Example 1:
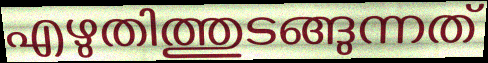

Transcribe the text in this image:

എഴുതിത്തുടങ്ങുന്നത്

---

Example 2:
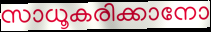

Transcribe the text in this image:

സാധൂകരിക്കാനോ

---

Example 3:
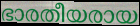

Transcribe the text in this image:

ഭാരതീയരായ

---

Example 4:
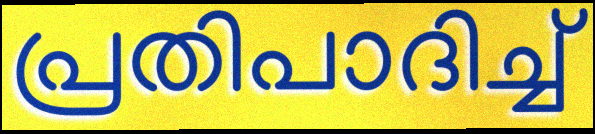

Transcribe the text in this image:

പ്രതിപാദിച്ച്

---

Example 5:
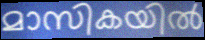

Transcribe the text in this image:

മാസികയിൽ